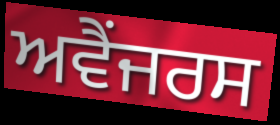
ਅਵੈਂਜਰਸ